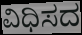
ವಿಧಿಸದ